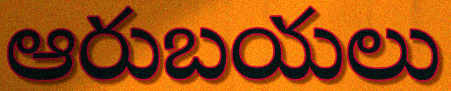
ఆరుబయలు